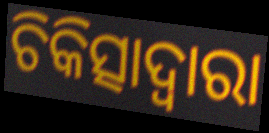
ଚିକିତ୍ସାଦ୍ଵାରା